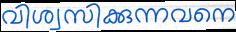
വിശ്വസിക്കുന്നവനെ